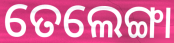
ତେଲେଙ୍ଗା